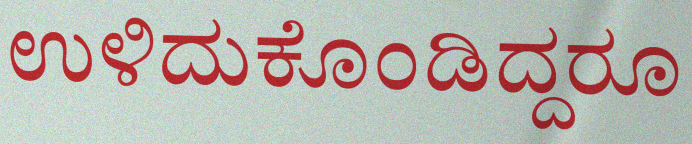
ಉಳಿದುಕೊಂಡಿದ್ದರೂ